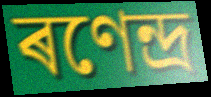
ৰণেন্দ্ৰ